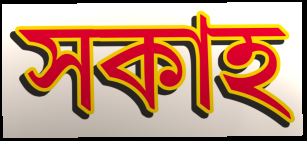
সকাহ